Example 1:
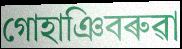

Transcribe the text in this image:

গোহাঞিবৰুৱা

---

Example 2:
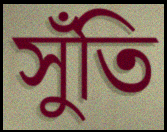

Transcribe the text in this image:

সুঁতি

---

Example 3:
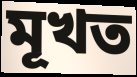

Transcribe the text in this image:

মূখত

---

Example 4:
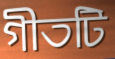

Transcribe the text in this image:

গীতটি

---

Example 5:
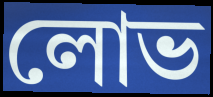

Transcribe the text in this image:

লোভ